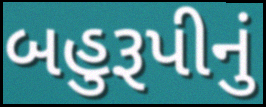
બહુરૂપીનું